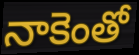
నాకెంతో